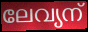
ലേവ്യന്